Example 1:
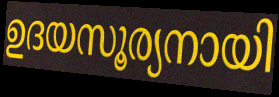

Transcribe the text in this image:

ഉദയസൂര്യനായി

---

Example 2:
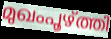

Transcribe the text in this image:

മുഖംപൂഴ്ത്തി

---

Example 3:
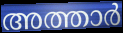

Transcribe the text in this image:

അത്താർ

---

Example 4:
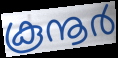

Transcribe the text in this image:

കൂനൂർ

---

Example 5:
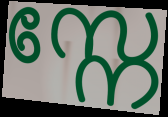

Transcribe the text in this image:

സ്നേ